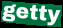
getty